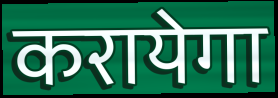
करायेगा